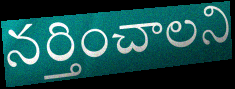
నర్తించాలని